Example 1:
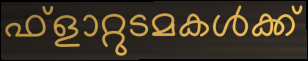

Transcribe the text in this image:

ഫ്ളാറ്റുടമകൾക്ക്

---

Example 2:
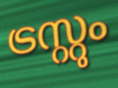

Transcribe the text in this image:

ട്രസ്റ്റും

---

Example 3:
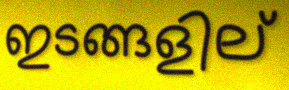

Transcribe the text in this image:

ഇടങ്ങളില്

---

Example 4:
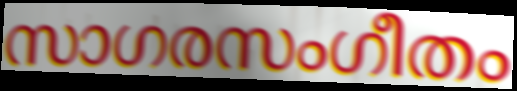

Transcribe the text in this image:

സാഗരസംഗീതം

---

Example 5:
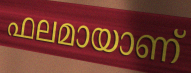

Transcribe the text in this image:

ഫലമായാണ്